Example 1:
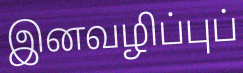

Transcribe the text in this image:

இனவழிப்புப்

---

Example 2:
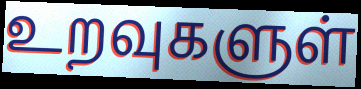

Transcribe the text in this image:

உறவுகளுள்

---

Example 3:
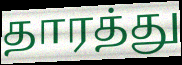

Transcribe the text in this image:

தாரத்து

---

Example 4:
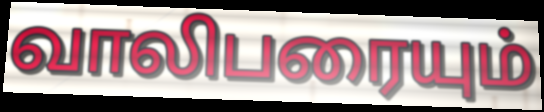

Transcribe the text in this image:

வாலிபரையும்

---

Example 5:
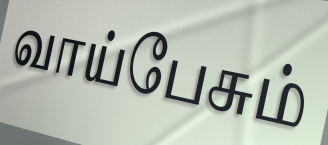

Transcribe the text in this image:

வாய்பேசும்